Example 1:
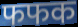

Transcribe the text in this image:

फफक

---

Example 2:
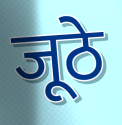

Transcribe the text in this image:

जूठे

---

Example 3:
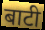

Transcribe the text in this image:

बाटी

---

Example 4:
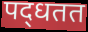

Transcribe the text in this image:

पद्धतत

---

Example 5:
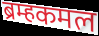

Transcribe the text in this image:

ब्रम्हकमल